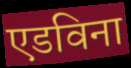
एडविना